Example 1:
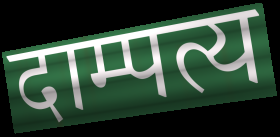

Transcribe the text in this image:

दाम्पत्य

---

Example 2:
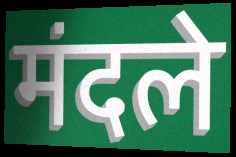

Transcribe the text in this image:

मंदले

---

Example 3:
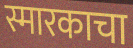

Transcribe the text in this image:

स्मारकाचा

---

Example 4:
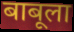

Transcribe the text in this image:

बाबूला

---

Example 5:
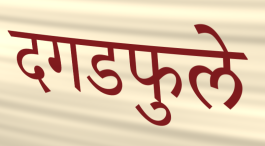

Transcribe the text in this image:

दगडफुले